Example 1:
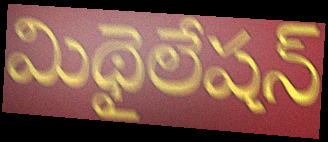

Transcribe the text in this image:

మిథైలేషన్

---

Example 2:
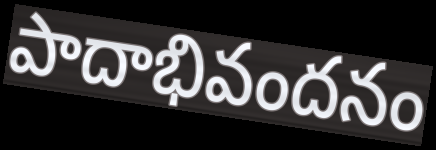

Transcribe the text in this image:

పాదాభివందనం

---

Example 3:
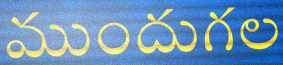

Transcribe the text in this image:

ముందుగల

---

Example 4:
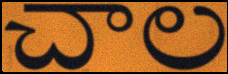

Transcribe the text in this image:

చాల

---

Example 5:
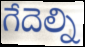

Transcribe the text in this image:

గేదెల్ని